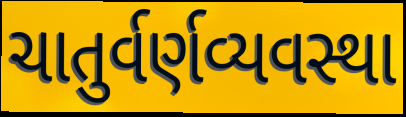
ચાતુર્વર્ણવ્યવસ્થા